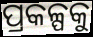
ପ୍ରକଳ୍ପକୁ